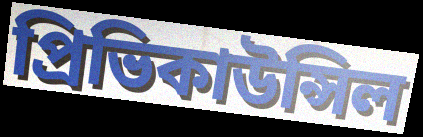
প্রিভিকাউন্সিল